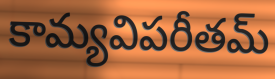
కామ్యవిపరీతమ్